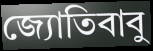
জ্যোতিবাবু